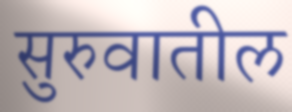
सुरुवातील